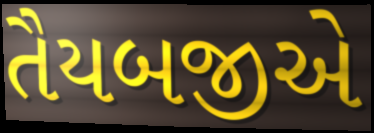
તૈયબજીએ